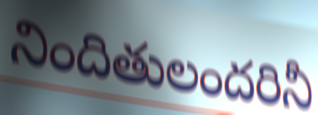
నిందితులందరినీ